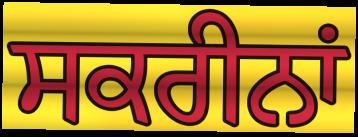
ਸਕਰੀਨਾਂ